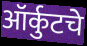
ऑर्कुटचे